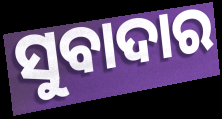
ସୁବାଦାର